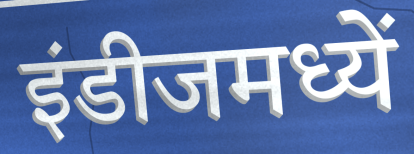
इंडीजमध्यें